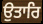
ਉਤਾਰਿ